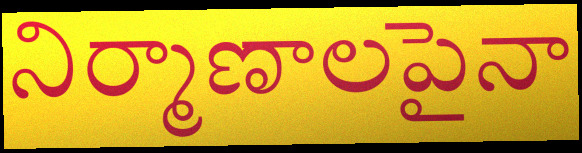
నిర్మాణాలపైనా